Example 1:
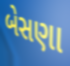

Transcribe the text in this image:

બેસણા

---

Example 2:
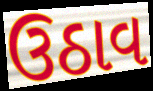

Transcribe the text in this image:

ઉઠાવ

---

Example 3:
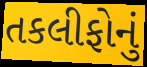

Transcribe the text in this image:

તકલીફોનું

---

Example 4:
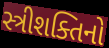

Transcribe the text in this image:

સ્ત્રીશક્તિનો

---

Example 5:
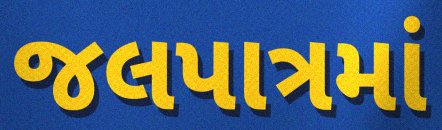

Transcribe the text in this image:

જલપાત્રમાં